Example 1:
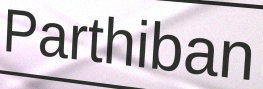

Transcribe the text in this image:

Parthiban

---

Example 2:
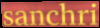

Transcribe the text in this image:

sanchri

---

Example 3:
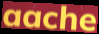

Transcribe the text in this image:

aache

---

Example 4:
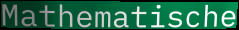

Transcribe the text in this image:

Mathematische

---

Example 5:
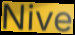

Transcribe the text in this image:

Nive